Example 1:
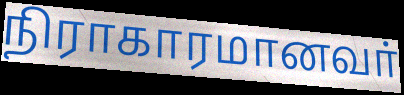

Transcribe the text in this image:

நிராகாரமானவர்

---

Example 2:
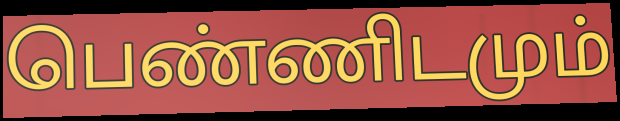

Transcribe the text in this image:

பெண்ணிடமும்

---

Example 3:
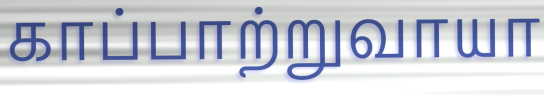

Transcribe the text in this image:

காப்பாற்றுவாயா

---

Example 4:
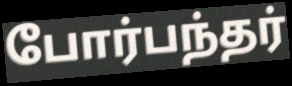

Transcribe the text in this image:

போர்பந்தர்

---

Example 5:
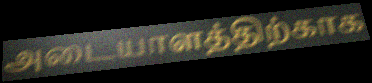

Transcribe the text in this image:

அடையாளத்திற்காக